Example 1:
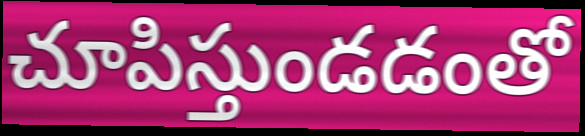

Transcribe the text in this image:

చూపిస్తుండడంతో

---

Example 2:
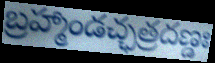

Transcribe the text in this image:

బ్రహ్మాండచ్ఛత్రదణ్డః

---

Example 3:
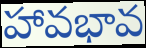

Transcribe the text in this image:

హావభావ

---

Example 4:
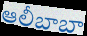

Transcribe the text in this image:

ఆలీబాబా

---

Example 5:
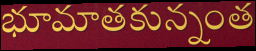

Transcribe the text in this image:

భూమాతకున్నంత